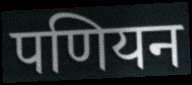
पणियन